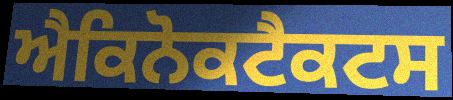
ਐਕਿਨੋਕਟੈਕਟਸ